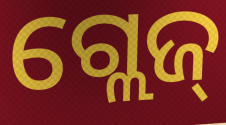
ଗ୍ଲେଜ୍